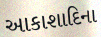
આકાશાદિના